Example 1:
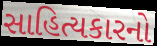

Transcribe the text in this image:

સાહિત્યકારનો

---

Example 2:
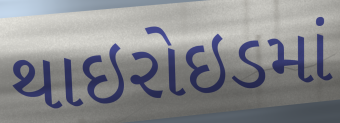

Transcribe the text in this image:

થાઇરોઇડમાં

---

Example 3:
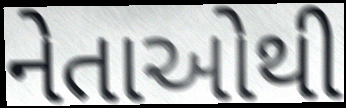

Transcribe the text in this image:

નેતાઓથી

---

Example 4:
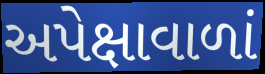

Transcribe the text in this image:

અપેક્ષાવાળાં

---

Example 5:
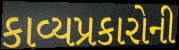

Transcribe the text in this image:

કાવ્યપ્રકારોની